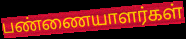
பண்ணையாளர்கள்